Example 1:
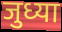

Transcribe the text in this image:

जुध्या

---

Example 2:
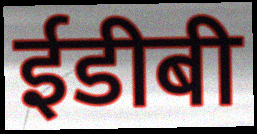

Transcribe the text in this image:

ईडीबी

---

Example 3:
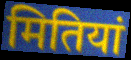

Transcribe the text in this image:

मितियां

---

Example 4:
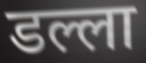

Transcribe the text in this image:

डल्ला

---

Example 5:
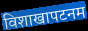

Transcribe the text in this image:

विशाखापटनम